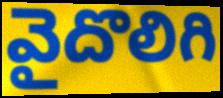
వైదొలిగి